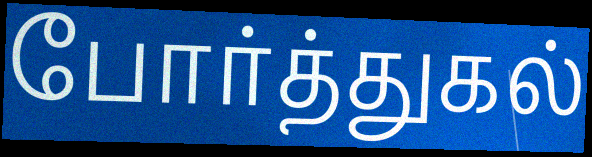
போர்த்துகல்